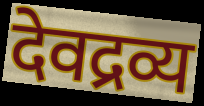
देवद्रव्य